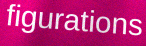
figurations